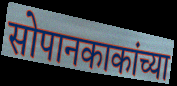
सोपानकाकांच्या